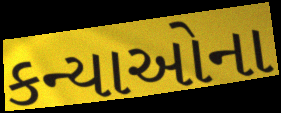
કન્યાઓના